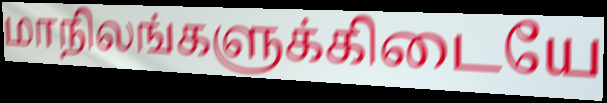
மாநிலங்களுக்கிடையே